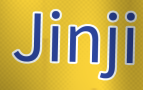
Jinji